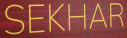
SEKHAR